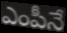
ఎంపీనే